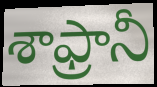
శాఫ్రానీ